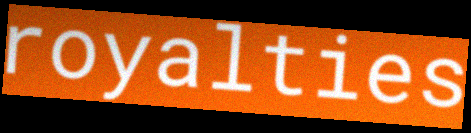
royalties